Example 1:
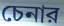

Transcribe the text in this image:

চেনার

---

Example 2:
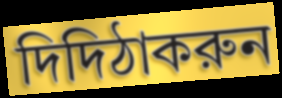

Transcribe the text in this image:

দিদিঠাকরুন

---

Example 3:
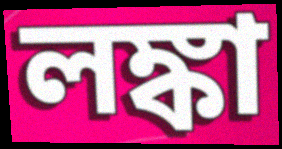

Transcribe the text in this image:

লঙ্কা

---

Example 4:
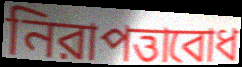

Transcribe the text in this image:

নিরাপত্তাবোধ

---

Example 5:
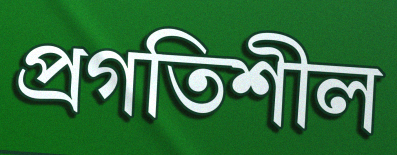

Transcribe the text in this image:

প্রগতিশীল